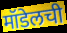
मॉडेलची